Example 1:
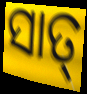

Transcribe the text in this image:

ସାତ୍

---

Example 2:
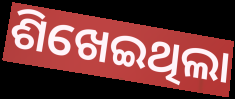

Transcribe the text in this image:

ଶିଖେଇଥିଲା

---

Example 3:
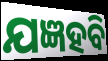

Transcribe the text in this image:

ଯଜ୍ଞହବି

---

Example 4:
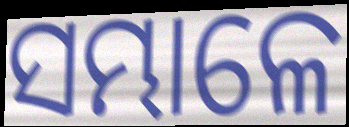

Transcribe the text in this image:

ସମ୍ଭାଳେ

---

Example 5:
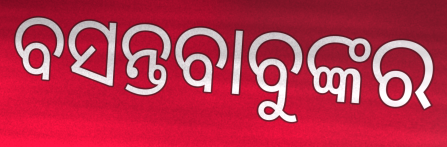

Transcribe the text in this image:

ବସନ୍ତବାବୁଙ୍କର